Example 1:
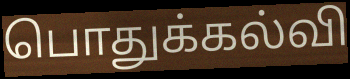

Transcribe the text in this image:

பொதுக்கல்வி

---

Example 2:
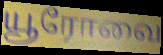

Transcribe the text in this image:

யூரோவை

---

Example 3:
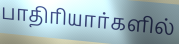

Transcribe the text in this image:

பாதிரியார்களில்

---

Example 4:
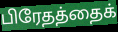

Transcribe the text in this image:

பிரேதத்தைக்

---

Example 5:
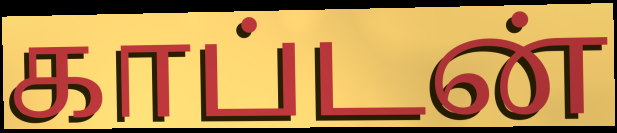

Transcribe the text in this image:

காப்டன்